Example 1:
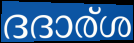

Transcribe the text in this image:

ദദാര്ശ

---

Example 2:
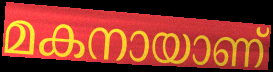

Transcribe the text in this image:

മകനായാണ്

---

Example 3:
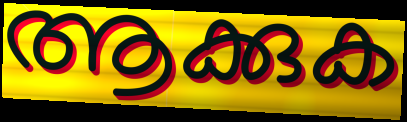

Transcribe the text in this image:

ആക്കുക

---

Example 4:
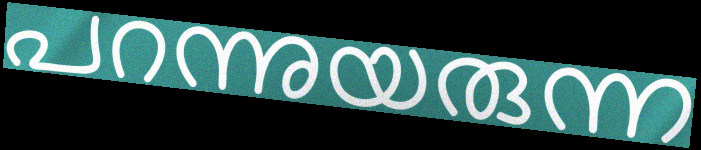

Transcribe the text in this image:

പറന്നുയരുന്ന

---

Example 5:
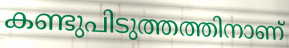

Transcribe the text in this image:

കണ്ടുപിടുത്തത്തിനാണ്